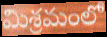
మిశ్రమంలో